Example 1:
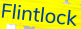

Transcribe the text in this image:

Flintlock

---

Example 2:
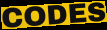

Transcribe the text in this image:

CODES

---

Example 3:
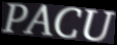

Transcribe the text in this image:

PACU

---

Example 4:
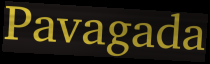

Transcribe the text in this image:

Pavagada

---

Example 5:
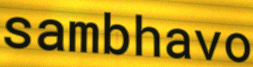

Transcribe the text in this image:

sambhavo